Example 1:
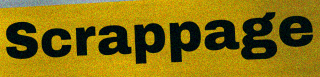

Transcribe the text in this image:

Scrappage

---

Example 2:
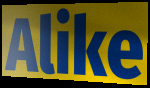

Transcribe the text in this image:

Alike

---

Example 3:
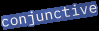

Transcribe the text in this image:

conjunctive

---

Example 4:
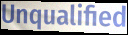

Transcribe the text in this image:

Unqualified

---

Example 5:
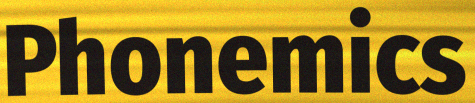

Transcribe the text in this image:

Phonemics